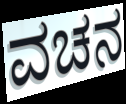
ವಚನ